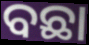
ବଛା